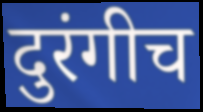
दुरंगीच